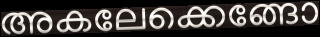
അകലേക്കെങ്ങോ